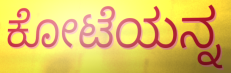
ಕೋಟೆಯನ್ನ